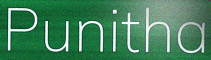
Punitha